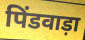
पिंडवाड़ा